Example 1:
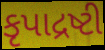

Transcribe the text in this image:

કૃપાદ્રષ્ટી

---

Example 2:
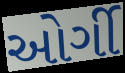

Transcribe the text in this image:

ઓર્ગી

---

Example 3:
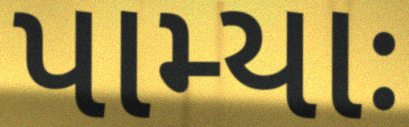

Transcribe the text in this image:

પામ્યાઃ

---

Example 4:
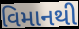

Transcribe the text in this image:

વિમાનથી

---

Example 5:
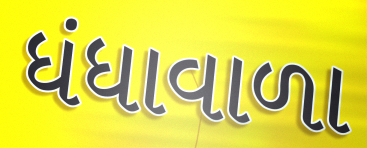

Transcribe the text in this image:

ધંધાવાળા